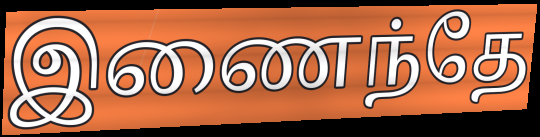
இணைந்தே